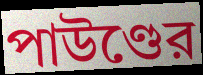
পাউণ্ডের